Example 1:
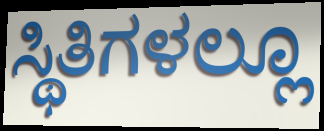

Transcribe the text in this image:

ಸ್ಥಿತಿಗಳಲ್ಲೂ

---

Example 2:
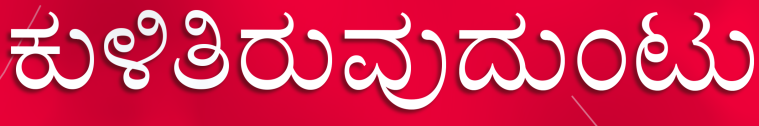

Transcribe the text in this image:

ಕುಳಿತಿರುವುದುಂಟು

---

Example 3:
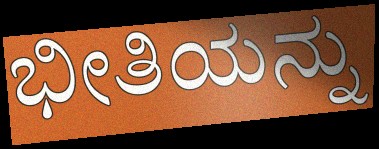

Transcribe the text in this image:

ಭೀತಿಯನ್ನು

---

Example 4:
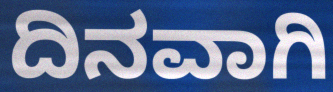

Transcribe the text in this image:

ದಿನವಾಗಿ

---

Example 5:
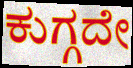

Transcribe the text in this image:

ಕುಗ್ಗದೇ